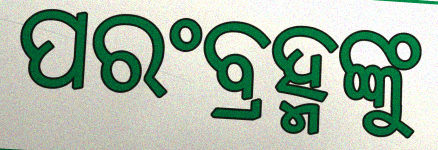
ପରଂବ୍ରହ୍ମଙ୍କୁ